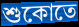
শুকোতে